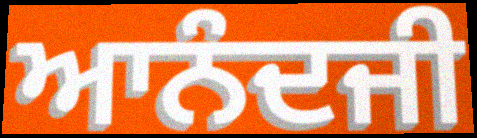
ਆਨੰਦਜੀ